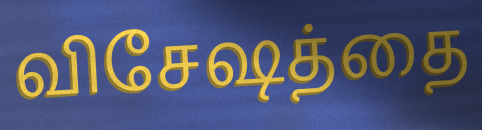
விசேஷத்தை